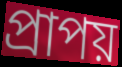
প্রাপয়